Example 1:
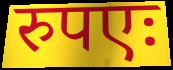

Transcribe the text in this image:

रुपएः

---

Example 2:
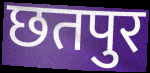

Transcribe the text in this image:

छतपुर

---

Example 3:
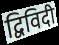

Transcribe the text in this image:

द्विविदी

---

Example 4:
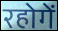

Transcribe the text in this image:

रहोगें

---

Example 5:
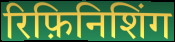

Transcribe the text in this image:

रिफ़िनिशिंग